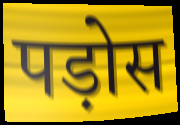
पड़ोस